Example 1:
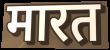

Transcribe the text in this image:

मारत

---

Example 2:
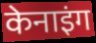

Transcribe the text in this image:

केनाइंग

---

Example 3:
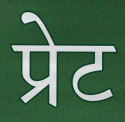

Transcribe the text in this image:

प्रेट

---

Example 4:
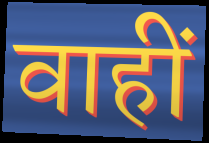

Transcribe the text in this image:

वाहीं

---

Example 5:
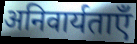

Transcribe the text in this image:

अनिवार्यताएँ